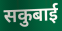
सकुबाई